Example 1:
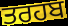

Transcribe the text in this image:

ਤਰਹਬ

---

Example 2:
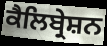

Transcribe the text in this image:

ਕੈਲਿਬ੍ਰੇਸ਼ਨ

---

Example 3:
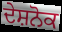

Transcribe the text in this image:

ਦੇਸ਼ਨੋਕ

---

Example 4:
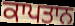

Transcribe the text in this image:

ਕਾਪਤਾਨ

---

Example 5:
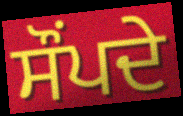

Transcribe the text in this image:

ਸੌਂਪਦੇ